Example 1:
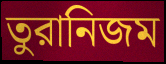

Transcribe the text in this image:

তুরানিজম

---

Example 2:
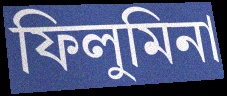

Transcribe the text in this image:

ফিলুমিনা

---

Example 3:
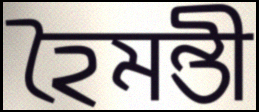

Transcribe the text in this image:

হৈমন্তী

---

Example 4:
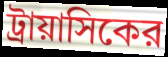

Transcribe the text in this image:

ট্রায়াসিকের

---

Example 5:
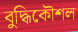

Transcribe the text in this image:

বুদ্ধিকৌশল